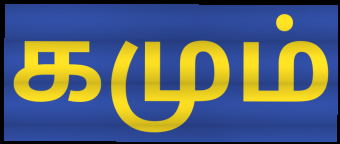
கமும்